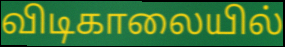
விடிகாலையில்